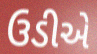
ઉડીએ